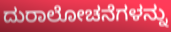
ದುರಾಲೋಚನೆಗಳನ್ನು